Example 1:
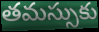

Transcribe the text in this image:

తమస్సుకు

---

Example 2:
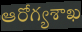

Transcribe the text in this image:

ఆరోగ్యశాఖ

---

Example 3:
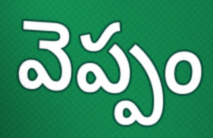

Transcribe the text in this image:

వెప్పం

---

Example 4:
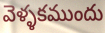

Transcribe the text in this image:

వెళ్ళకముందు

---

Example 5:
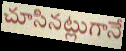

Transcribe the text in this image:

చూసినట్లుగానే